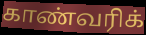
காண்வரிக்